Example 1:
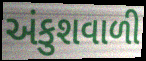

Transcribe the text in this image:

અંકુશવાળી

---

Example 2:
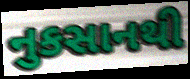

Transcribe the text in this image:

નુકસાનથી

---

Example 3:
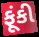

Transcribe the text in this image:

ફૂંકી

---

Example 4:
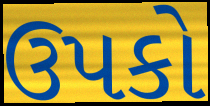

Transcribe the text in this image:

ઉપકો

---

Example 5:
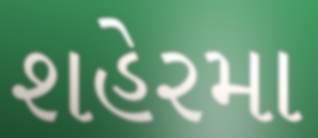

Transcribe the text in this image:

શહેરમા